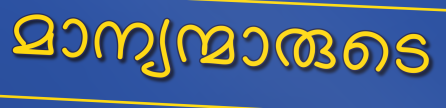
മാന്യന്മാരുടെ